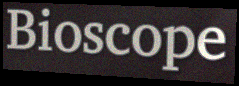
Bioscope